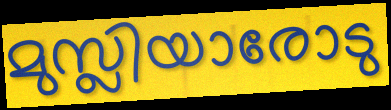
മുസ്ലിയാരോടു